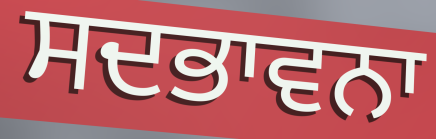
ਸਦਭਾਵਨਾ